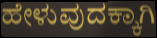
ಹೇಳುವುದಕ್ಕಾಗಿ